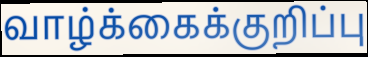
வாழ்க்கைக்குறிப்பு